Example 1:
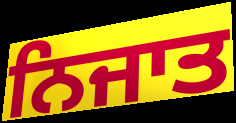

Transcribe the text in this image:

ਨਿਜਾਤ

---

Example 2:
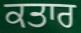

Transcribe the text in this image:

ਕਤਾਰ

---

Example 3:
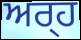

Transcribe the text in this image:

ਅਰ੍‍ਹ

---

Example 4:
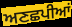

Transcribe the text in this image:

ਅਣਛਪੀਆਂ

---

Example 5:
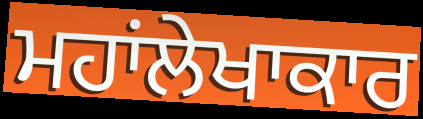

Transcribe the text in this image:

ਮਹਾਂਲੇਖਾਕਾਰ